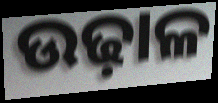
ଉଢ଼ାଳ